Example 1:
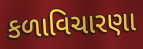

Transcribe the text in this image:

કળાવિચારણા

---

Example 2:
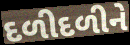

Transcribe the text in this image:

દળીદળીને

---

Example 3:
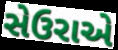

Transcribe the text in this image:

સેઉરાએ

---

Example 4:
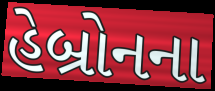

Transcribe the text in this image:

હેબ્રોનના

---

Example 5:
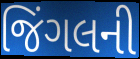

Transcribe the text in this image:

જિંગલની